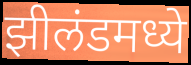
झीलंडमध्ये